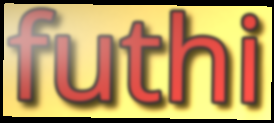
futhi